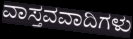
ವಾಸ್ತವವಾದಿಗಳು